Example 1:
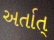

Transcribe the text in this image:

અર્તાત્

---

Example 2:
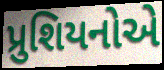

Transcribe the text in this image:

પ્રુશિયનોએ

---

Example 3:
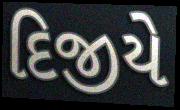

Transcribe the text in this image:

દિજીયે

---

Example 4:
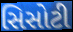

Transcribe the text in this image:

સિસોટી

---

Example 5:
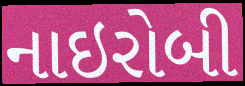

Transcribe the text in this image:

નાઇરોબી